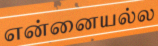
என்னையல்ல